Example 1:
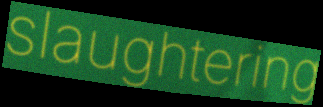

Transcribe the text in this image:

slaughtering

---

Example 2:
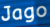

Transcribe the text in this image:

Jago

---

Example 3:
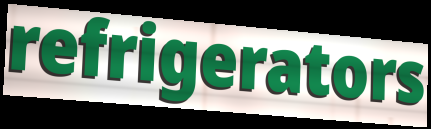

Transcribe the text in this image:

refrigerators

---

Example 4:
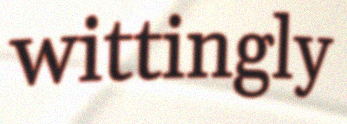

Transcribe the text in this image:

wittingly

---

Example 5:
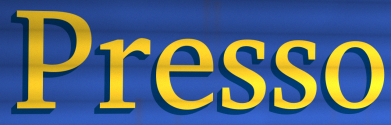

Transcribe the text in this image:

Presso